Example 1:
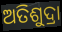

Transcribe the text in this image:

ଅତିଶୁଦ୍ରା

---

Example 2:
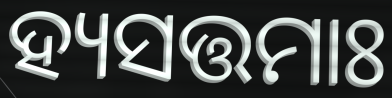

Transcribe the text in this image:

ହ୍ୟସତ୍ତମାଃ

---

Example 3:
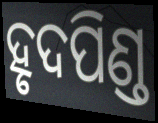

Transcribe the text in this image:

ହୃଦପିଣ୍ଡ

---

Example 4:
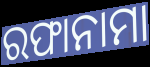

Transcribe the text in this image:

ରଫାନାମା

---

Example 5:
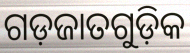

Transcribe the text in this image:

ଗଡ଼ଜାତଗୁଡ଼ିକ